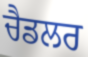
ਚੈਡਲਰ